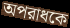
অপরাধকে